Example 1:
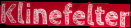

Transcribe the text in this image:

Klinefelter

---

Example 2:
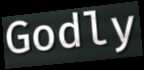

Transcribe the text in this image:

Godly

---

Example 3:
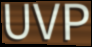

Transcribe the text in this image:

UVP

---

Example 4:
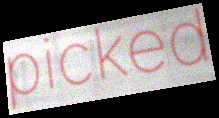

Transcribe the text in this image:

picked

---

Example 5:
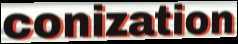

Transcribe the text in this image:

conization